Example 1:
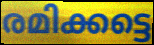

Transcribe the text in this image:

രമിക്കട്ടെ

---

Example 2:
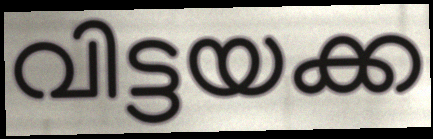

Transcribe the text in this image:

വിട്ടയക്ക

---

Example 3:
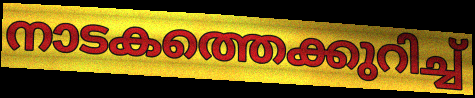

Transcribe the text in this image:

നാടകത്തെക്കുറിച്ച്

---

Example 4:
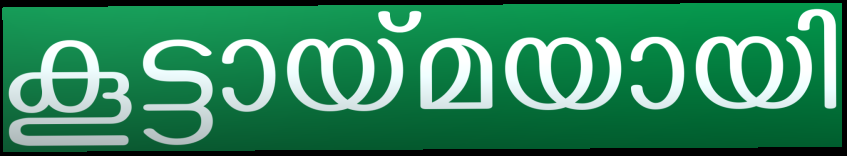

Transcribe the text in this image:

കൂട്ടായ്മയായി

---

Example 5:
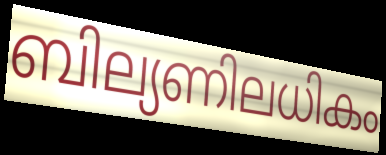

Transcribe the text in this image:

ബില്യണിലധികം